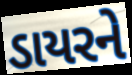
ડાયરને